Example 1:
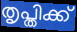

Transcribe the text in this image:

തൃപ്തിക്ക്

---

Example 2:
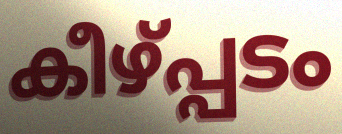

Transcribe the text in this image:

കീഴ്പ്പടം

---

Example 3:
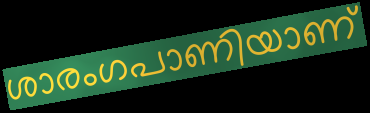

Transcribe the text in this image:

ശാരംഗപാണിയാണ്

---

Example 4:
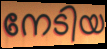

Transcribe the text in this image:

നേടിയ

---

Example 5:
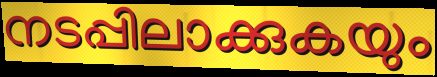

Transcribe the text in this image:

നടപ്പിലാക്കുകയും